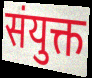
संयुक्त